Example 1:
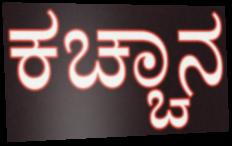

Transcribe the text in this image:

ಕಚ್ಚಾನ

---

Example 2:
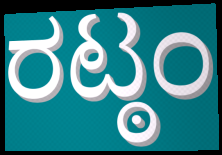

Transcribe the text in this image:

ರಟ್ಠಂ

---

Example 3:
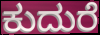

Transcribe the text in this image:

ಕುದುರೆ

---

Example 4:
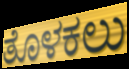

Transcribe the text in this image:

ತೊಳಕಲು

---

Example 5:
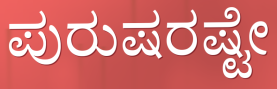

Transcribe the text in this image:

ಪುರುಷರಷ್ಟೇ